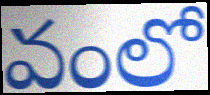
వంలో